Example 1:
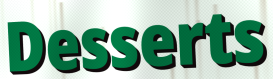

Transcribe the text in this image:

Desserts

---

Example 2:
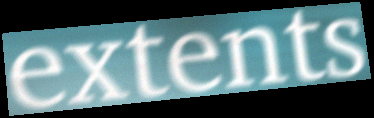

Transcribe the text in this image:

extents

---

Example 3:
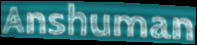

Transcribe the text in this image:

Anshuman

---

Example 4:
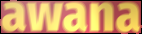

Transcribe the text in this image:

awana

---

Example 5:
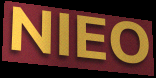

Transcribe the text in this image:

NIEO